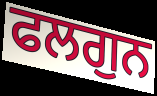
ਫਲਗੁਨ